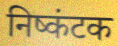
निष्कंटक